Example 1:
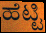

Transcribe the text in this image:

ಹೆಟ್ಟಿ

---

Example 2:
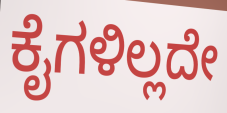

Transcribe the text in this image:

ಕೈಗಳಿಲ್ಲದೇ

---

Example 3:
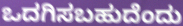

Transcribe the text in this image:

ಒದಗಿಸಬಹುದೆಂದು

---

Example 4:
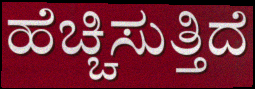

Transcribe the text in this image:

ಹೆಚ್ಚಿಸುತ್ತಿದೆ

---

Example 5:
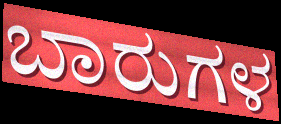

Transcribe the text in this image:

ಬಾರುಗಳ